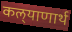
कल्याणार्थ